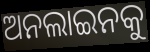
ଅନଲାଇନକୁ